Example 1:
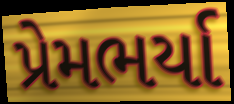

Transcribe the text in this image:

પ્રેમભર્યા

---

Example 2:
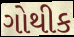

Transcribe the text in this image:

ગોથીક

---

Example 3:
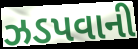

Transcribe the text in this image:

ઝડપવાની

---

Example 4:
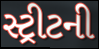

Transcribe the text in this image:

સ્ટ્રીટની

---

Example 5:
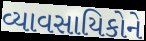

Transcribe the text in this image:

વ્યાવસાયિકોને